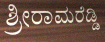
ಶ್ರೀರಾಮರೆಡ್ಡಿ